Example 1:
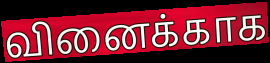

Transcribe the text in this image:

வினைக்காக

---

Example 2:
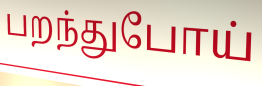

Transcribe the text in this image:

பறந்துபோய்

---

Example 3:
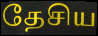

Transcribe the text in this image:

தேசிய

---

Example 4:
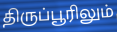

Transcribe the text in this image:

திருப்பூரிலும்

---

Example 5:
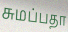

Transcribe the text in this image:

சுமப்பதா